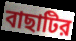
বাছাটির